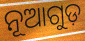
ନୂଆଗୁଡ଼